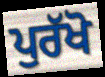
ਪੁਰੱਖੋ